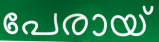
പേരായ്